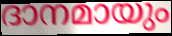
ദാനമായും